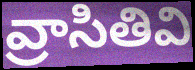
వ్రాసితివి